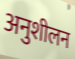
अनुशीलन